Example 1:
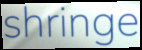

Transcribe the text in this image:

shringe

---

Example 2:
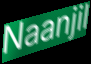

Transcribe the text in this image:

Naanjil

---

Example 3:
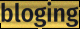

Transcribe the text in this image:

bloging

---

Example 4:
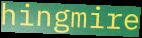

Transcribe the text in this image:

hingmire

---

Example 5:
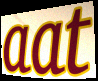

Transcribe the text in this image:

aat